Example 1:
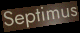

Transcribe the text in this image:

Septimus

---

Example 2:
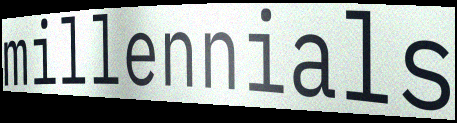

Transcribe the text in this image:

millennials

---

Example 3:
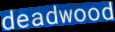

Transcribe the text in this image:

deadwood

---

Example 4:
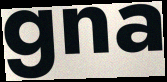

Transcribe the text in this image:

gna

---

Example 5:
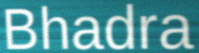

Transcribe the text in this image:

Bhadra